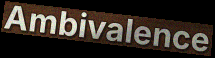
Ambivalence